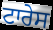
ਟਾਰੇਸ